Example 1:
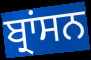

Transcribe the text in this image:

ਬ੍ਰਾਂਸਨ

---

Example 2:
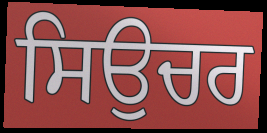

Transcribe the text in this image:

ਸਿਉਚਰ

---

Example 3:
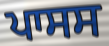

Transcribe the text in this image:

ਪਾਸਸ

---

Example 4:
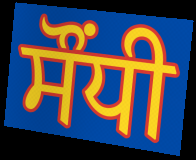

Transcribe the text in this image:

ਸੌਂਧੀ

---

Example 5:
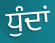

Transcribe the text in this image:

ਧੁੰਦਾਂ